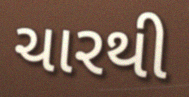
ચારથી